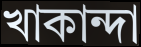
খাকান্দা